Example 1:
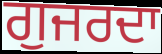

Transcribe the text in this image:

ਗੁਜਰਦਾ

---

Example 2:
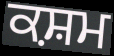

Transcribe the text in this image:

ਕ਼ਸ਼ਮ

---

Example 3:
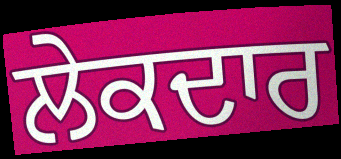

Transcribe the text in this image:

ਲੇਕਦਾਰ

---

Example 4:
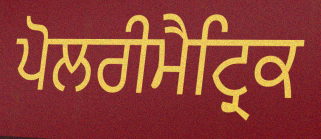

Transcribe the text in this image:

ਪੋਲਰੀਮੈਟ੍ਰਿਕ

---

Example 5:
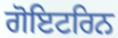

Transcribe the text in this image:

ਗੋਇਟਰਿਨ